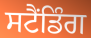
ਸਟੈਂਡਿੰਗ